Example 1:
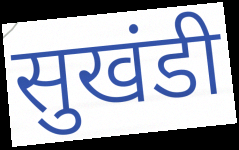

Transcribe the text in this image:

सुखंडी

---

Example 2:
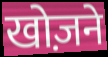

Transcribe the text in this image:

खोज़ने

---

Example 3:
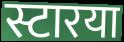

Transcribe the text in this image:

स्टारया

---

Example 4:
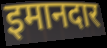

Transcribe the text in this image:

इमानदार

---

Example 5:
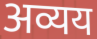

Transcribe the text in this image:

अव्यय